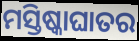
ମସ୍ତିଷ୍କାଘାତର